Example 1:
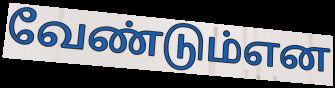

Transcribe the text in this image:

வேண்டும்என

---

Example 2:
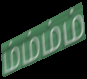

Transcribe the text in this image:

ம்ம்ம்ம்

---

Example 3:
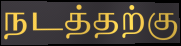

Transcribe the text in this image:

நடத்தற்கு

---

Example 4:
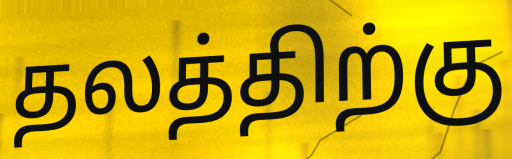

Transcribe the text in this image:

தலத்திற்கு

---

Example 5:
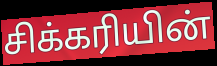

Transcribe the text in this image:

சிக்கரியின்